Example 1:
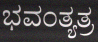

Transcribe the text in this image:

ಭವಂತ್ಯತ್ರ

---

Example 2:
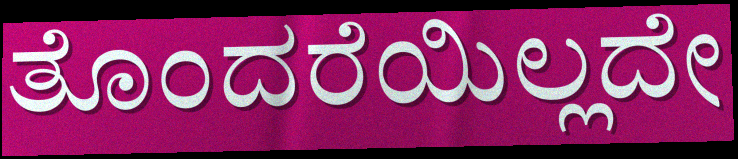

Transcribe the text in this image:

ತೊಂದರೆಯಿಲ್ಲದೇ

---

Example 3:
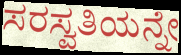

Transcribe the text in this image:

ಸರಸ್ವತಿಯನ್ನೇ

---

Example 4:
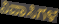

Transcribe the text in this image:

ನಿವಾಸಿಗಳ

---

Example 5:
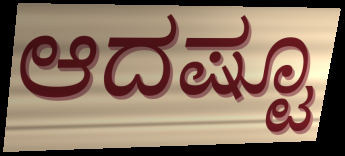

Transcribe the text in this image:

ಆದಷ್ಟೂ